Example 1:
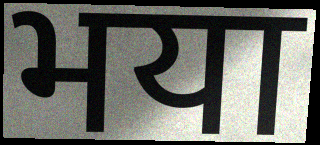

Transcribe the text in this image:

भया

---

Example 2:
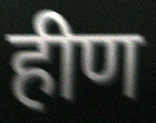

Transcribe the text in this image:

हीण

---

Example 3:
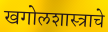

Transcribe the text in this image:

खगोलशास्त्राचे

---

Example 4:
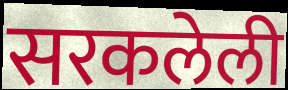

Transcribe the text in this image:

सरकलेली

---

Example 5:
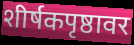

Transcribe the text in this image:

शीर्षकपृष्ठावर